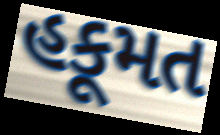
હકૂમત